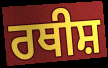
ਰਥੀਸ਼